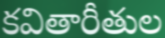
కవితారీతుల